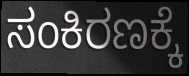
ಸಂಕಿರಣಕ್ಕೆ